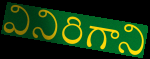
వినిరిగాని